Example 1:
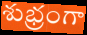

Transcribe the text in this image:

శుభ్రంగా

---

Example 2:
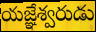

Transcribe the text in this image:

యజ్ఞేశ్వరుడు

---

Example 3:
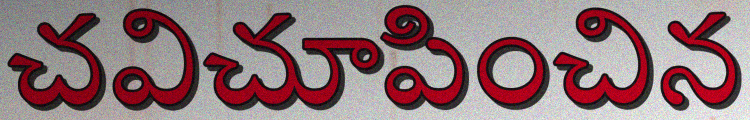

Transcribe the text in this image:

చవిచూపించిన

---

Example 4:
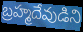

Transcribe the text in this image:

బ్రహ్మదేవుడిని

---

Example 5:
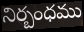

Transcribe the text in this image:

నిర్బంధము